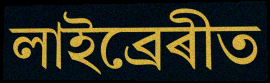
লাইব্ৰেৰীত